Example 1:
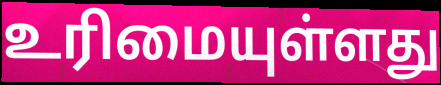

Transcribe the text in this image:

உரிமையுள்ளது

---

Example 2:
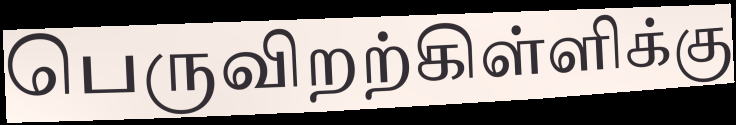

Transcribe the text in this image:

பெருவிறற்கிள்ளிக்கு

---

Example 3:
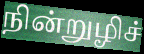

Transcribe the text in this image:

நின்றுழிச்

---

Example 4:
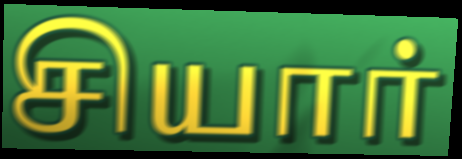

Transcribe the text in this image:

சியார்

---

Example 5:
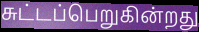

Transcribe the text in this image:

சுட்டப்பெறுகின்றது